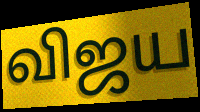
விஜய